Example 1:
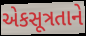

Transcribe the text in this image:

એકસૂત્રતાને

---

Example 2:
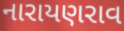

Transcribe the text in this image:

નારાયણરાવ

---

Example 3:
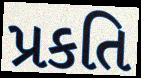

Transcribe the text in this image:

પ્રકતિ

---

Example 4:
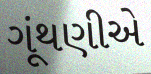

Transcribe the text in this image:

ગૂંથણીએ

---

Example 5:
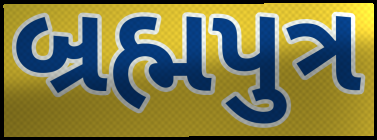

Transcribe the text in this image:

બ્રહ્મપુત્ર